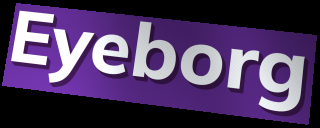
Eyeborg